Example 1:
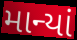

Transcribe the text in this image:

માન્યાં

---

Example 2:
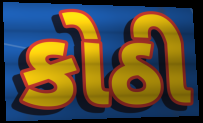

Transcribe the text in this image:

કોઠી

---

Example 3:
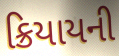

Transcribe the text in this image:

ક્રિયાયની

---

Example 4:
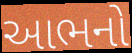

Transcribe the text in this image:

આભનો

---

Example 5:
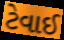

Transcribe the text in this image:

ટેવાઈ